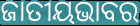
ଜାତୀୟଭାବର